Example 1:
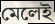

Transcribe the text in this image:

মেলেই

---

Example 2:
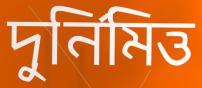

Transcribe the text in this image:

দুর্নিমিত্ত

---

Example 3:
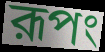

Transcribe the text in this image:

রূপং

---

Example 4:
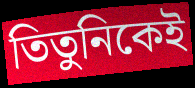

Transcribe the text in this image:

তিতুনিকেই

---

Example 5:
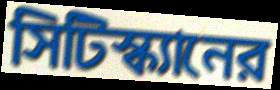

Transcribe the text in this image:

সিটিস্ক্যানের